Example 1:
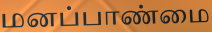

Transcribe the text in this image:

மனப்பாண்மை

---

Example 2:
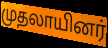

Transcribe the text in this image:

முதலாயினர்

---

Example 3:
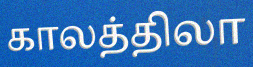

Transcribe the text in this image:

காலத்திலா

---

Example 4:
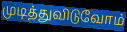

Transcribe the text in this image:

முடித்துவிடுவோம்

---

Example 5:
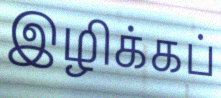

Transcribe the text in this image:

இழிக்கப்